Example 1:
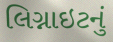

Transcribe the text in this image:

લિગ્નાઇટનું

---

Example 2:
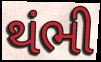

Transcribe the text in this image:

થંભી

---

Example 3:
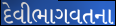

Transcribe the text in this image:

દેવીભાગવતના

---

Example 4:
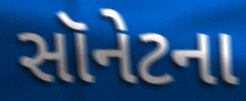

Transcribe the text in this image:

સૉનેટના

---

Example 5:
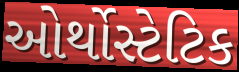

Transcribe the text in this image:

ઓર્થોસ્ટેટિક